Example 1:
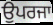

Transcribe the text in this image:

ਉਪਰਜਾ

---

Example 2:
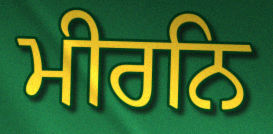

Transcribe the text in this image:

ਮੀਰਨਿ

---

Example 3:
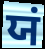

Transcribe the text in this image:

ਯਂ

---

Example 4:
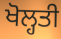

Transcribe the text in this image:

ਖੋਲ੍ਹਤੀ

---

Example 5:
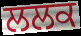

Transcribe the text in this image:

ਲਲਕ